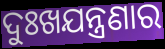
ଦୁଃଖଯନ୍ତ୍ରଣାର